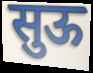
सुऊ